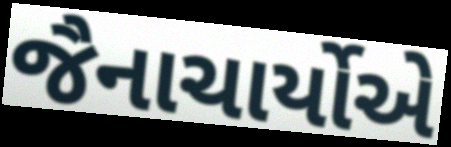
જૈનાચાર્યોએ